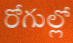
రోగుల్లో